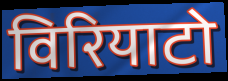
विरियाटो